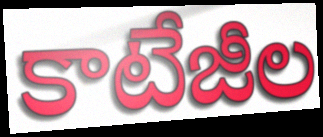
కాటేజీల